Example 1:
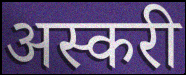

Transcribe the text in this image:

अस्करी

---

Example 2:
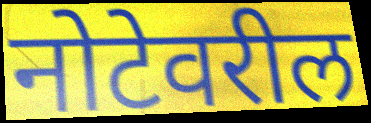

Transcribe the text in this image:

नोटेवरील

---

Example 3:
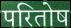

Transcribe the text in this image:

परितोष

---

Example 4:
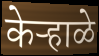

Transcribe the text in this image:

केऱ्हाळे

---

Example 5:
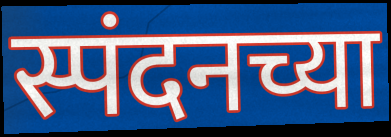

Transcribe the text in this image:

स्पंदनच्या